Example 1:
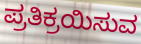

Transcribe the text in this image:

ಪ್ರತಿಕ್ರಯಿಸುವ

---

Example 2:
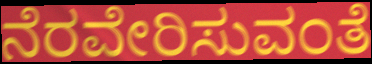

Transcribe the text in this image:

ನೆರವೇರಿಸುವಂತೆ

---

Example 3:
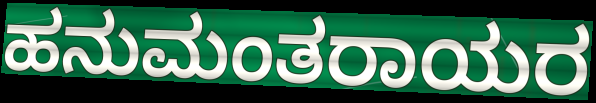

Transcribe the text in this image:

ಹನುಮಂತರಾಯರ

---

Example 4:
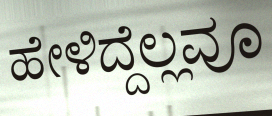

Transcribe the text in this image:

ಹೇಳಿದ್ದೆಲ್ಲವೂ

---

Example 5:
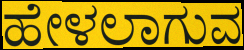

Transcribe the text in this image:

ಹೇಳಲಾಗುವ